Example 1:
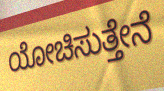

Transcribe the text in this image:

ಯೋಚಿಸುತ್ತೇನೆ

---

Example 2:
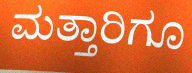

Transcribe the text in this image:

ಮತ್ತಾರಿಗೂ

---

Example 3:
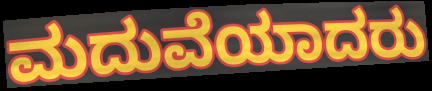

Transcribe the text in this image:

ಮದುವೆಯಾದರು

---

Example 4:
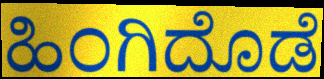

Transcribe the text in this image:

ಹಿಂಗಿದೊಡೆ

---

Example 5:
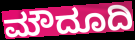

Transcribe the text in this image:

ಮೌದೂದಿ